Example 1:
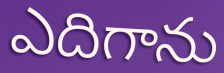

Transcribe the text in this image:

ఎదిగాను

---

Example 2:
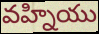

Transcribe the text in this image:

వహ్నియు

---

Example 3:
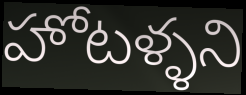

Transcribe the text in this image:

హోటళ్ళని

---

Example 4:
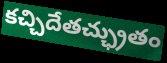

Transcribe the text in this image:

కచ్చిదేతచ్ఛ్రుతం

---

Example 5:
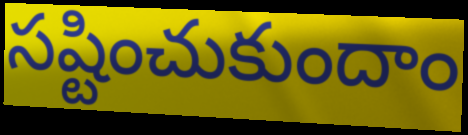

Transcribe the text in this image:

సష్టించుకుందాం